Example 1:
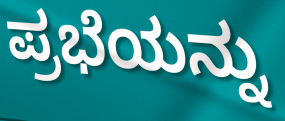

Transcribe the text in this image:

ಪ್ರಭೆಯನ್ನು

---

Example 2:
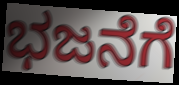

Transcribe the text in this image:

ಭಜನೆಗೆ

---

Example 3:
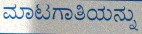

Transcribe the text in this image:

ಮಾಟಗಾತಿಯನ್ನು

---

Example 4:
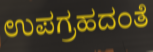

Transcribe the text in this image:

ಉಪಗ್ರಹದಂತೆ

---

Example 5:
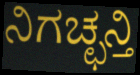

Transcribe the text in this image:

ನಿಗಚ್ಛನ್ತಿ